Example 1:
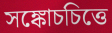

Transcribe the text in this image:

সঙ্কোচচিত্তে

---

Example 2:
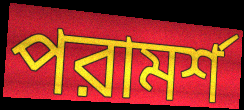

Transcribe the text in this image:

পরামর্শ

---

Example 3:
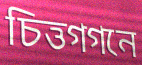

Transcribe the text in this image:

চিত্তগগনে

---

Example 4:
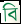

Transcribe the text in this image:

বি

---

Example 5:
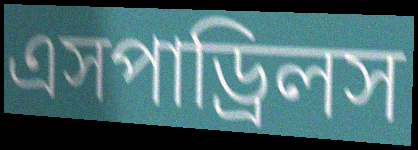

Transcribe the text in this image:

এসপাড্রিলস